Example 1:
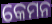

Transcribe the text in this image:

କେମନ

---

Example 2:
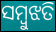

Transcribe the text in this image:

ସମ୍ବୁଝତି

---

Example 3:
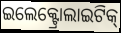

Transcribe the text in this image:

ଇଲେକ୍ଟ୍ରୋଲାଇଟିକ୍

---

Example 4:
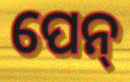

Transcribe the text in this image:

ପେନ୍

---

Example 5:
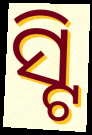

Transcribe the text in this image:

ସ୍ଟି